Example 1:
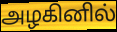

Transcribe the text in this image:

அழகினில்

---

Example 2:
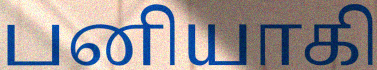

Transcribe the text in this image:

பனியாகி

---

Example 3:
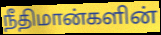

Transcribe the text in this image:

நீதிமான்களின்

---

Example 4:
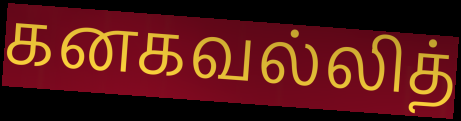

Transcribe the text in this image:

கனகவல்லித்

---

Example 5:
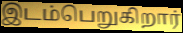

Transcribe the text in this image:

இடம்பெறுகிறார்